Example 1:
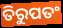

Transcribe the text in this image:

ତିରୁପତଂ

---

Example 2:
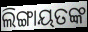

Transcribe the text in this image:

ଲିଙ୍ଗାୟତଙ୍କ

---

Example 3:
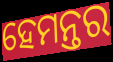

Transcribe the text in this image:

ହେମନ୍ତର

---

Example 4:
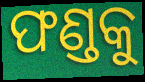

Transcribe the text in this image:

ଫଣ୍ଡକୁ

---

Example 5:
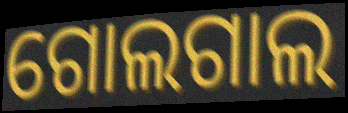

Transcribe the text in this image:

ଗୋଲଗାଲ